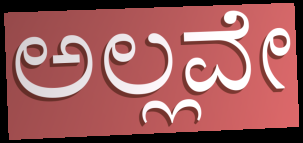
ಅಲ್ಲವೇ